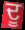
ਦੂ